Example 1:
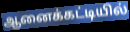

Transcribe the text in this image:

ஆனைக்கட்டியில்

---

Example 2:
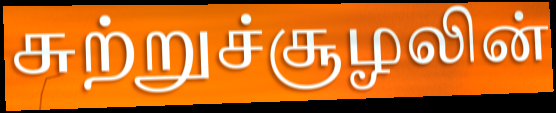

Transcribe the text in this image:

சுற்றுச்சூழலின்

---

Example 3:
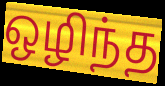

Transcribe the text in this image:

ஒழிந்த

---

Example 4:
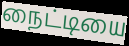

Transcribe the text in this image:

நைட்டியை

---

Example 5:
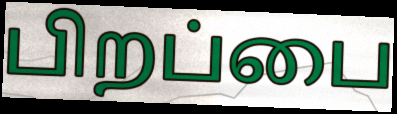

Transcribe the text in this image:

பிறப்பை